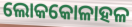
ଲୋକକୋଳାହଳ